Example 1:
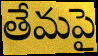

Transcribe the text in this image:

తేమపై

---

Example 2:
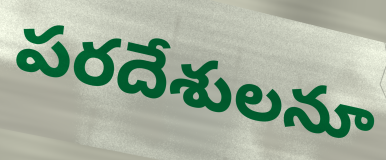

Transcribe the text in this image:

పరదేశులనూ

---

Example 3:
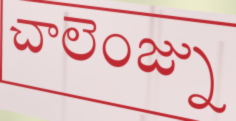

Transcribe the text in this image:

చాలెంజ్ను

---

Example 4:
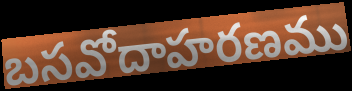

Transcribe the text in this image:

బసవోదాహరణము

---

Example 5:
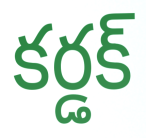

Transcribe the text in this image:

కర్డక్